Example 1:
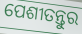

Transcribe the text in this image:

ପେଶୀତନ୍ତୁର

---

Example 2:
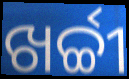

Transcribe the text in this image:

ଖର୍ଚ୍ଚୀ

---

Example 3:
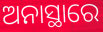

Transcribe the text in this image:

ଅନାସ୍ଥାରେ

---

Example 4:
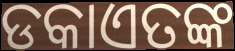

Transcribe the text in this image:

ଡକାଏତଙ୍କ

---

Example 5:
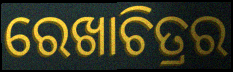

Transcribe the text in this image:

ରେଖାଚିତ୍ରର